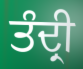
ਤੰਦ੍ਰੀ